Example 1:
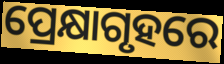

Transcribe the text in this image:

ପ୍ରେକ୍ଷାଗୃହରେ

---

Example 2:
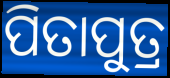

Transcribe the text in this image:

ପିତାପୁତ୍ର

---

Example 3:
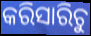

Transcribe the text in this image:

କରିସାରିଚୁ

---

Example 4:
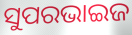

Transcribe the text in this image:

ସୁପରଭାଇଜ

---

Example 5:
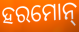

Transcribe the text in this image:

ହରମୋନ୍